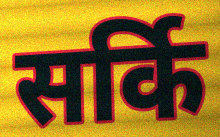
सर्कि